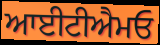
ਆਈਟੀਐਮਓ